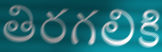
తిరగలికి